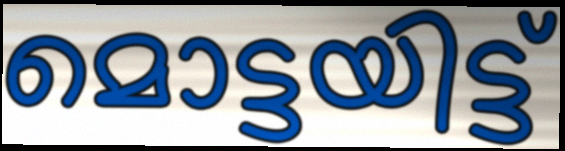
മൊട്ടയിട്ട്